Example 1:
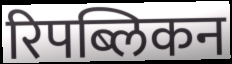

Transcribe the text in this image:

रिपब्लिकन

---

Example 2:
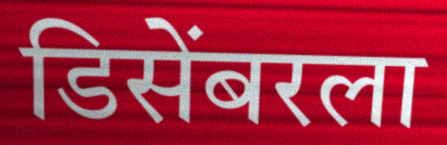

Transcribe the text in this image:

डिसेंबरला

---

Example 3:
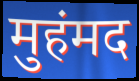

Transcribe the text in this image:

मुहंमद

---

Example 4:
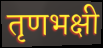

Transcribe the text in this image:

तृणभक्षी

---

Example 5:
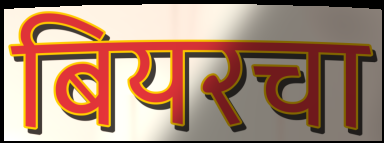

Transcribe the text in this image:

बियरचा